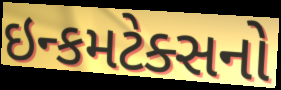
ઇન્કમટેક્સનો